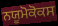
ਨਯੂਮੋਕੋਕਸ